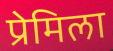
प्रेमिला